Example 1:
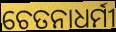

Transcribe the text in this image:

ଚେତନାଧର୍ମୀ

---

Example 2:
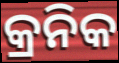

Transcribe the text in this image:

କ୍ରନିକ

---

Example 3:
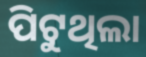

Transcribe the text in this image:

ପିଟୁଥିଲା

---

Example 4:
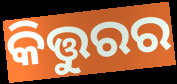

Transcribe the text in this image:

କିତ୍ତୁରର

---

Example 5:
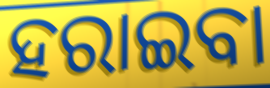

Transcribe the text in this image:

ହରାଇବା